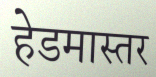
हेडमास्तर